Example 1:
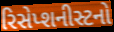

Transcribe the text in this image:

રિસેપ્શનીસ્ટનો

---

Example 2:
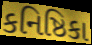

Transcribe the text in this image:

કનિષ્ઠિકા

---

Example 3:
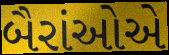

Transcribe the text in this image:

બૈરાંઓએ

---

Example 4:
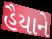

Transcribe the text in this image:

હૈયાને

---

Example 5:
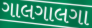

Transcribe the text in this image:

ગાલગાલગા